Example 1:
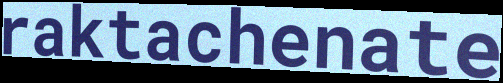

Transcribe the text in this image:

raktachenate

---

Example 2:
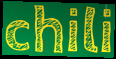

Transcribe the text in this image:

chili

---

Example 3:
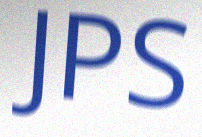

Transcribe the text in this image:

JPS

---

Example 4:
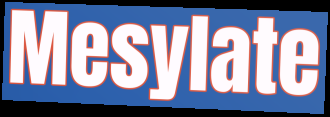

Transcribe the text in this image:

Mesylate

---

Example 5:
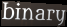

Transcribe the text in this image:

binary